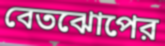
বেতঝোপের